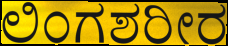
ಲಿಂಗಶರೀರ